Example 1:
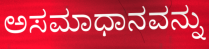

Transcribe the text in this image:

ಅಸಮಾಧಾನವನ್ನು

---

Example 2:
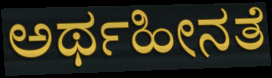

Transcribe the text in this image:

ಅರ್ಥಹೀನತೆ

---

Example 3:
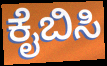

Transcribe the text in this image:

ಕೈಬಿಸಿ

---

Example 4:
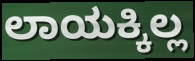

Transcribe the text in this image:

ಲಾಯಕ್ಕಿಲ್ಲ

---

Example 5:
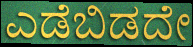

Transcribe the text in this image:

ಎಡೆಬಿಡದೇ